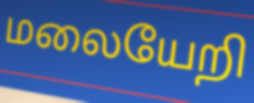
மலையேறி